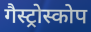
गैस्ट्रोस्कोप